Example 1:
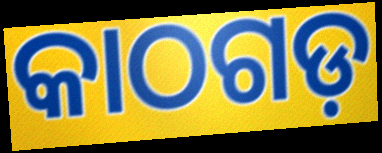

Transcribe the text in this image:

କାଠଗଡ଼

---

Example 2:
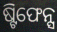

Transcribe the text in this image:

ଷ୍ଟିଫେନ୍ସ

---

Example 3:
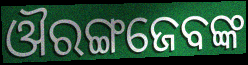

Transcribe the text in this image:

ଔରଙ୍ଗଜେବଙ୍କ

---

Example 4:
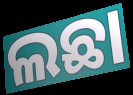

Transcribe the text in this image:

ଲଛା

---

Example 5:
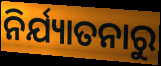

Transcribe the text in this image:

ନିର୍ଯ୍ୟାତନାରୁ